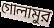
গোলামুর